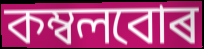
কম্বলবোৰ